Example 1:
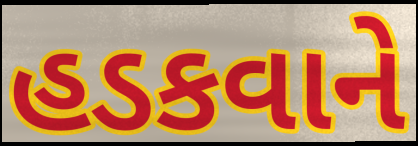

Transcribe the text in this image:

હડકવાને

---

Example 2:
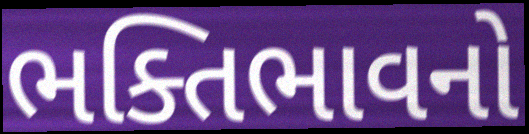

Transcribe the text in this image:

ભક્તિભાવનો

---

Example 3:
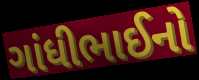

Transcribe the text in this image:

ગાંધીભાઈનો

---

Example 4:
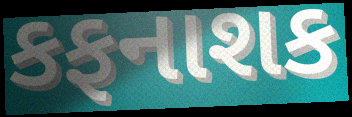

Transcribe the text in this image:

કફનાશક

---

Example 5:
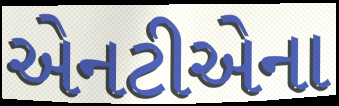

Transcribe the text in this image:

એનટીએના